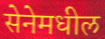
सेनेमधील